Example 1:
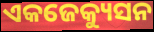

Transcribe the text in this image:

ଏକଜେକ୍ୟୁସନ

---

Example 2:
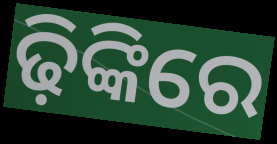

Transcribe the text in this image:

ଢ଼ିଙ୍କିରେ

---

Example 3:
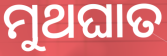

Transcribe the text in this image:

ମୁଥଘାତ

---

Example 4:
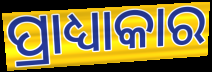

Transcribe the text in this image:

ପ୍ରାଧ୍ୟାକାର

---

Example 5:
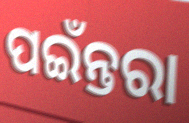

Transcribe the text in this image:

ପଇଁନ୍ତରା